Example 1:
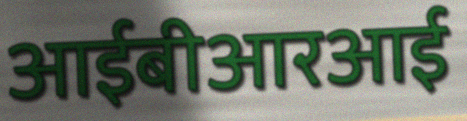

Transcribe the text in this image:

आईबीआरआई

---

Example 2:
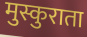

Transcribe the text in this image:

मुस्कुराता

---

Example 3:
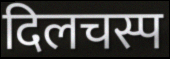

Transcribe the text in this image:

दिलचस्प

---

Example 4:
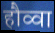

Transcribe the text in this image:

हौव्वा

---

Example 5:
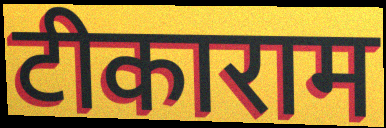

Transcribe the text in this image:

टीकाराम